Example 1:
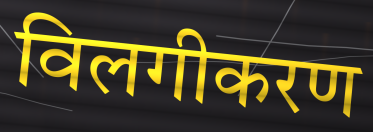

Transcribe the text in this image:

विलगीकरण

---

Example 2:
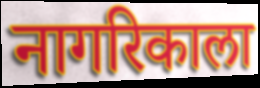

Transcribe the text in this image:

नागरिकाला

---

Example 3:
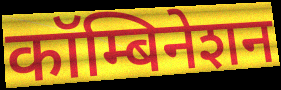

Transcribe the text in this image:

कॉम्बिनेशन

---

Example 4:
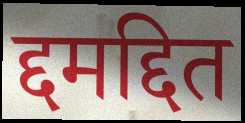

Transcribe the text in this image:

द्दमद्दित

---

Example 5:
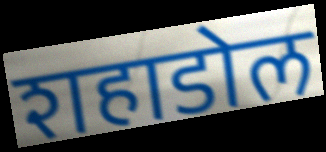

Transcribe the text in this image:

शहाडोल